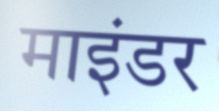
माइंडर